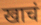
खाचं